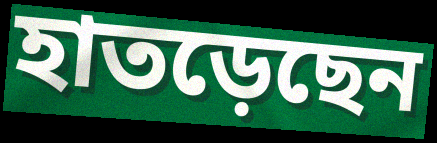
হাতড়েছেন